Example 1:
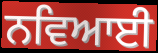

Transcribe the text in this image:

ਨਵਿਆਈ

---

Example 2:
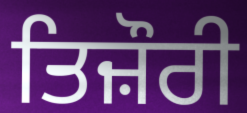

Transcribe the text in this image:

ਤਿਜ਼ੌਰੀ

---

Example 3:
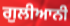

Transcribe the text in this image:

ਗੁਲੀਆਨੀ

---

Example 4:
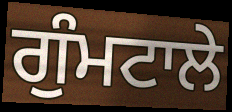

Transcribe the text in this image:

ਗੁੰਮਟਾਲੇ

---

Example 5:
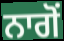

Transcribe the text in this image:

ਨਾਗੋਂ